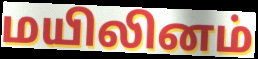
மயிலினம்